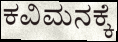
ಕವಿಮನಕ್ಕೆ